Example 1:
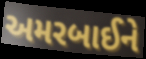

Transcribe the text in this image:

અમરબાઈને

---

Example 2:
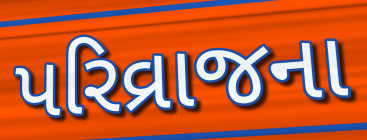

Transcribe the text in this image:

પરિવ્રાજના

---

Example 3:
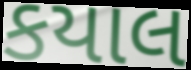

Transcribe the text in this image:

કયાલ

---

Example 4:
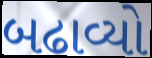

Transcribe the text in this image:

બઢાવ્યો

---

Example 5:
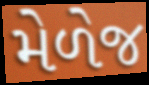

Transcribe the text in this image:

મેળેજ